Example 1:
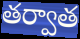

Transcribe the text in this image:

తర్వాత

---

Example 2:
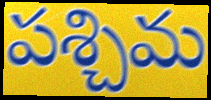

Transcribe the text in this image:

పశ్చిమ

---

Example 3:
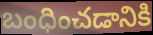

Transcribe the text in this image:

బంధించడానికి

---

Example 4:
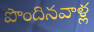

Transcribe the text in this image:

పొందినవాళ్ల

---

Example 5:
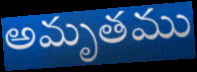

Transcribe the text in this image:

అమృతము